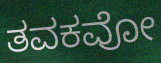
ತವಕವೋ